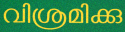
വിശ്രമിക്കു